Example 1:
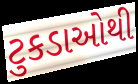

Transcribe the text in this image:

ટુકડાઓથી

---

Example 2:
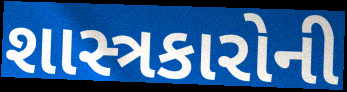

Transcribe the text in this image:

શાસ્ત્રકારોની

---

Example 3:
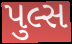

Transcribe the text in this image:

પુલ્સ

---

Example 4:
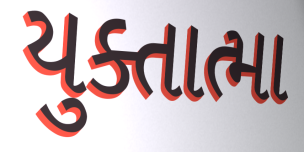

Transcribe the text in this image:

યુક્તાત્મા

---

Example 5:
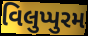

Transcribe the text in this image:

વિલુપ્પુરમ